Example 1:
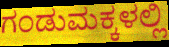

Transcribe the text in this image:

ಗಂಡುಮಕ್ಕಳಲ್ಲಿ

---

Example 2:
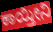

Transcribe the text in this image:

ಕಾಯ್ತೀನಿ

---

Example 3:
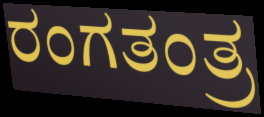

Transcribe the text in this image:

ರಂಗತಂತ್ರ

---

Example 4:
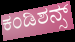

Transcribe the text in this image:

ಕಂಡಿಶನ್ಸ್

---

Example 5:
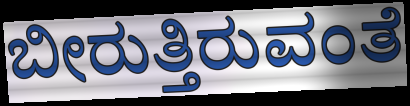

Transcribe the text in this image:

ಬೀರುತ್ತಿರುವಂತೆ